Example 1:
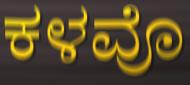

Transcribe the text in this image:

ಕಳವೊ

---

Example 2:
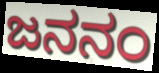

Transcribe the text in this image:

ಜನನಂ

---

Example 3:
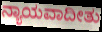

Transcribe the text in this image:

ನ್ಯಾಯವಾದೀತು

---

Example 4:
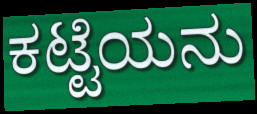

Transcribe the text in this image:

ಕಟ್ಟೆಯನು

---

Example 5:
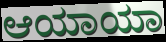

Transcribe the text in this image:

ಆಯಾಯಾ